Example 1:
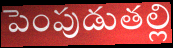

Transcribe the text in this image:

పెంపుడుతల్లి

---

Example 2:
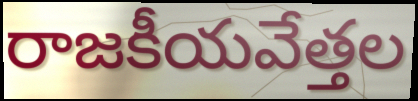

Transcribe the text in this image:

రాజకీయవేత్తల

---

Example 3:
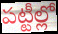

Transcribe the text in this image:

పట్టీల్లో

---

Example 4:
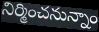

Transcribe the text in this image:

నిర్మించనున్నాం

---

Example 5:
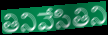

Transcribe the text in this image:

తినివేసితిని